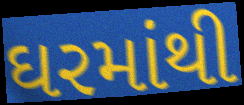
ઘરમાંથી